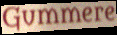
Gummere